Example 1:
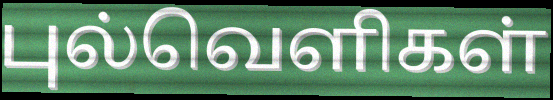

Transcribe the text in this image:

புல்வெளிகள்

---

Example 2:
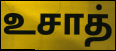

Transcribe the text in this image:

உசாத்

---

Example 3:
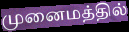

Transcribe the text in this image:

முனைமத்தில்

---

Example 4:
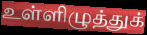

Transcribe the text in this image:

உள்ளிழுத்துக்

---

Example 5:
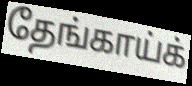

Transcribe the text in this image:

தேங்காய்க்